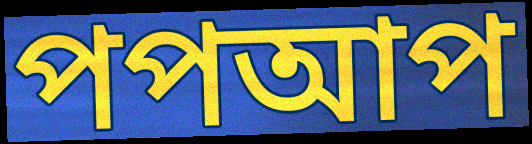
পপআপ